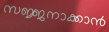
സജ്ജനാക്കാൻ